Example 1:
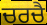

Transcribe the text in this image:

ਚਰਚੈ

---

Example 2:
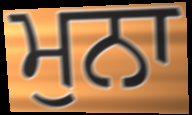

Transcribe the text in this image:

ਮੁਨਾ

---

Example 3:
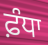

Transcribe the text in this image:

ਫ਼ੰਧਾ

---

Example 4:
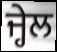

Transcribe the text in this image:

ਜ੍ਹੇਲ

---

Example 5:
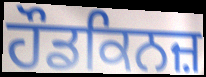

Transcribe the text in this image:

ਹੌਡਕਿਨਜ਼